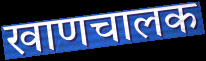
खाणचालक